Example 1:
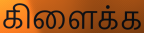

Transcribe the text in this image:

கிளைக்க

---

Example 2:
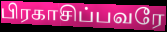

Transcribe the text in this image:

பிரகாசிப்பவரே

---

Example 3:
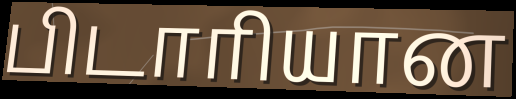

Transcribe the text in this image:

பிடாரியான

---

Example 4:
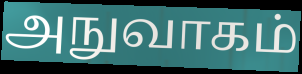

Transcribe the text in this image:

அநுவாகம்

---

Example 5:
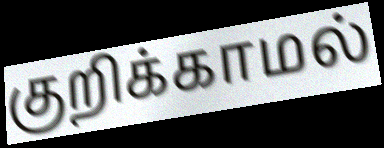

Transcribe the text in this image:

குறிக்காமல்